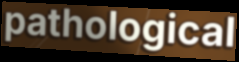
pathological